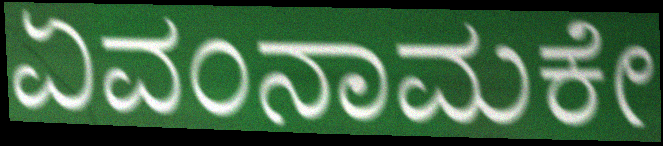
ಏವಂನಾಮಕೇ